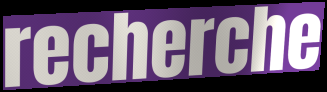
recherche